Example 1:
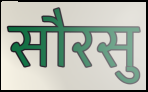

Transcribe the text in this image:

सौरसु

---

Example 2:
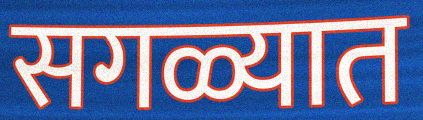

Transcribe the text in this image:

सगळ्यात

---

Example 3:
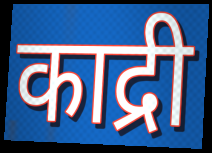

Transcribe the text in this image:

काद्री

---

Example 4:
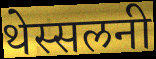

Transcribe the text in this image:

थेस्सलनी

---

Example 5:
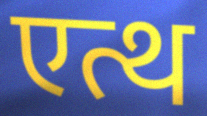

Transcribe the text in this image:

एत्थ